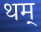
थम्